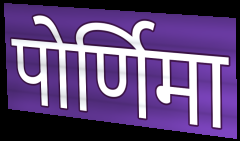
पोर्णिमा